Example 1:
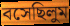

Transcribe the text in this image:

বসেছিলুম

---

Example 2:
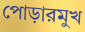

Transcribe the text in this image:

পোড়ারমুখ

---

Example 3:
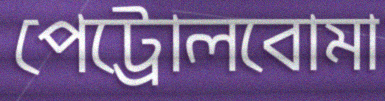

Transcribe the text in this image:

পেট্রোলবোমা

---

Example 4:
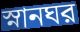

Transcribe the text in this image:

স্নানঘর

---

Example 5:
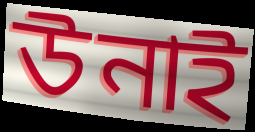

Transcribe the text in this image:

উনাই